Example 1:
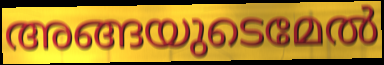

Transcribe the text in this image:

അങ്ങയുടെമേൽ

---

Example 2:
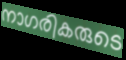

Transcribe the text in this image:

നാഗരികരുടെ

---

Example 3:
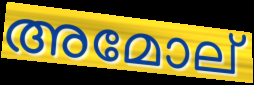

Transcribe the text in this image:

അമോല്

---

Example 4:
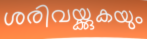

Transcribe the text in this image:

ശരിവയ്ക്കുകയും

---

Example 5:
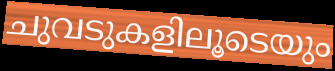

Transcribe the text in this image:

ചുവടുകളിലൂടെയും